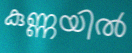
കുണ്ണയിൽ